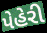
પેહેરી